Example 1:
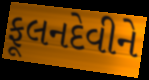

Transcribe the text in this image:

ફૂલનદેવીને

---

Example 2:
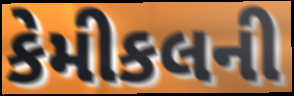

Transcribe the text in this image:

કેમીકલની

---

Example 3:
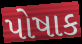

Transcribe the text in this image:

પોષાક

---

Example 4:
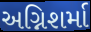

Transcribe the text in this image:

અગ્નિશર્મા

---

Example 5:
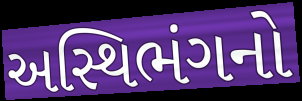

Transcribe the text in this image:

અસ્થિભંગનો